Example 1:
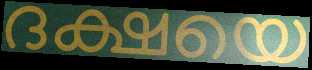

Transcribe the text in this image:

ദക്ഷയെ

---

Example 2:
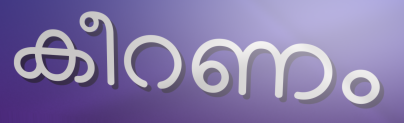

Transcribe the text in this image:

കീറണം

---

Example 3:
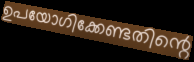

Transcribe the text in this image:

ഉപയോഗിക്കേണ്ടതിന്റെ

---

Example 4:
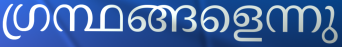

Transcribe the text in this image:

ഗ്രന്ഥങ്ങളെന്നു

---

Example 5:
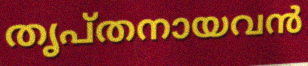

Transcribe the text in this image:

തൃപ്തനായവൻ